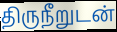
திருநீறுடன்